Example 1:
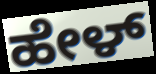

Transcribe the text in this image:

ಹೇಳ್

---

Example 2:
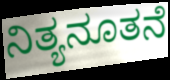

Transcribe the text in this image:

ನಿತ್ಯನೂತನೆ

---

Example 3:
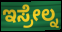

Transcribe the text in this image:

ಇಸ್ರೇಲ್ನ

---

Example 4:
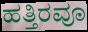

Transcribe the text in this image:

ಹತ್ತಿರವೂ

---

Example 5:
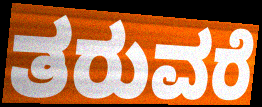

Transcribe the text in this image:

ತರುವರೆ